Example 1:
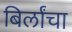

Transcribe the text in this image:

बिर्लांचा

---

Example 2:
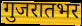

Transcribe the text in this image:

गुजरातभर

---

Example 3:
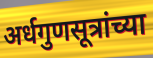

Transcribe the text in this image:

अर्धगुणसूत्रांच्या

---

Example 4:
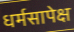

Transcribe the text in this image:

धर्मसापेक्ष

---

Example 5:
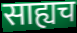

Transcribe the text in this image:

साह्यच